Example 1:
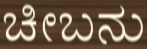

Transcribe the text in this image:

ಚೀಬನು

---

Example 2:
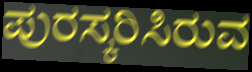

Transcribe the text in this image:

ಪುರಸ್ಕರಿಸಿರುವ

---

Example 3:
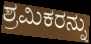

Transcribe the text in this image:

ಶ್ರಮಿಕರನ್ನು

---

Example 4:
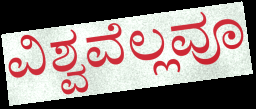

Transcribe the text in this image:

ವಿಶ್ವವೆಲ್ಲವೂ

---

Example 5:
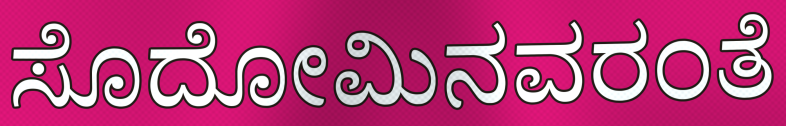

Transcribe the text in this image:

ಸೊದೋಮಿನವರಂತೆ